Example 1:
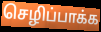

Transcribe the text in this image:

செழிப்பாக்க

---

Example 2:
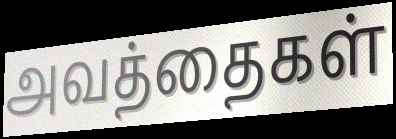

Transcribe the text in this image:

அவத்தைகள்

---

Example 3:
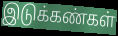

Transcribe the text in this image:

இடுக்கண்கள்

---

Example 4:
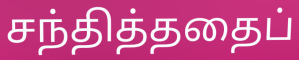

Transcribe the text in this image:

சந்தித்ததைப்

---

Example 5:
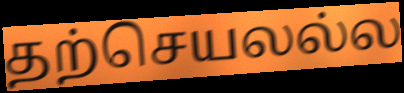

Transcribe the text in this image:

தற்செயலல்ல